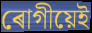
ৰোগীয়েই